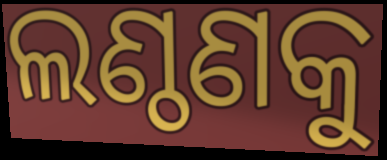
ଲଣ୍ଠଣକୁ